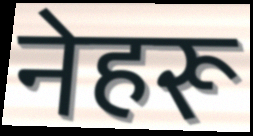
नेहरू